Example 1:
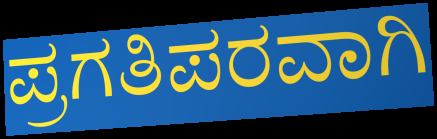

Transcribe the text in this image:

ಪ್ರಗತಿಪರವಾಗಿ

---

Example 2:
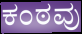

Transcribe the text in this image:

ಕಂಠವು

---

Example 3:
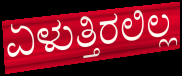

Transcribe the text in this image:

ಏಳುತ್ತಿರಲಿಲ್ಲ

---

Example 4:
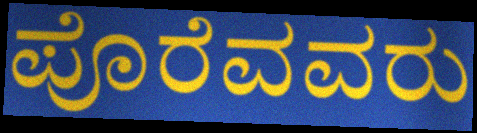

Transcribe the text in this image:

ಪೊರೆವವರು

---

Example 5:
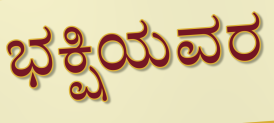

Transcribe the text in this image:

ಭಕ್ಷಿಯವರ